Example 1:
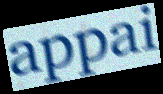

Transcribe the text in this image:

appai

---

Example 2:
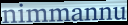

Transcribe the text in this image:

nimmannu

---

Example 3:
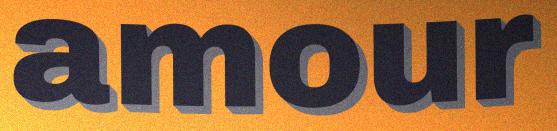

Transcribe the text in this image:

amour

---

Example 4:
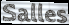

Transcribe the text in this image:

Salles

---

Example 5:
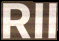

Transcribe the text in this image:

RII